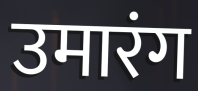
उमारंग